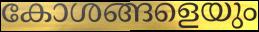
കോശങ്ങളെയും